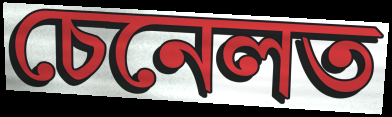
চেনেলত